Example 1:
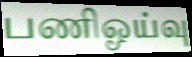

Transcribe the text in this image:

பணிஓய்வு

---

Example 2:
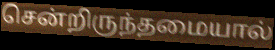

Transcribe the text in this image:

சென்றிருந்தமையால்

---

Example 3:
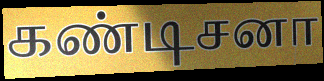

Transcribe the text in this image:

கண்டிசனா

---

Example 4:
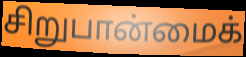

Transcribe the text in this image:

சிறுபான்மைக்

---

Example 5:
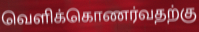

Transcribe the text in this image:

வெளிக்கொணர்வதற்கு